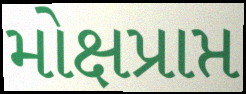
મોક્ષપ્રાપ્ત